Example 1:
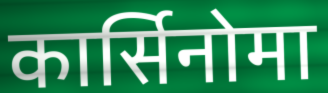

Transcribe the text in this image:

कार्सिनोमा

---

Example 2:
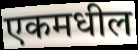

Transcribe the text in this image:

एकमधील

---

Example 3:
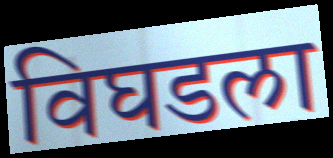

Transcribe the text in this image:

विघडला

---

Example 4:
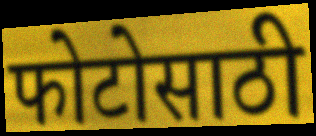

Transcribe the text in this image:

फोटोसाठी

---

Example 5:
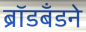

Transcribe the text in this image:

ब्रॉडबँडने